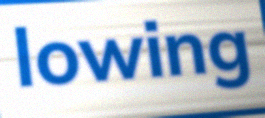
lowing